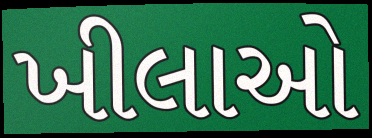
ખીલાઓ